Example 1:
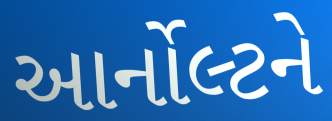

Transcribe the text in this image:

આર્નોલ્ટને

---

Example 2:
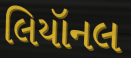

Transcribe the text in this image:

લિયૉનલ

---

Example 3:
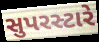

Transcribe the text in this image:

સુપરસ્ટારે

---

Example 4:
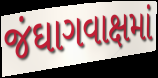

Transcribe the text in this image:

જંઘાગવાક્ષમાં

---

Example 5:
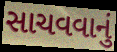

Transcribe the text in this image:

સાચવવાનું